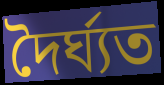
দৈৰ্ঘ্যত